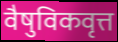
वैषुविकवृत्त